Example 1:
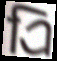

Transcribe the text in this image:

এি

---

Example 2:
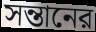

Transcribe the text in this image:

সন্তানের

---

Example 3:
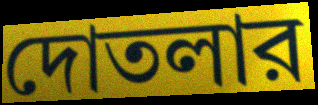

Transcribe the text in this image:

দোতলার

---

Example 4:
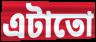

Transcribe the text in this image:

এটাতো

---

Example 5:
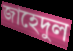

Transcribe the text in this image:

জাহেদুল